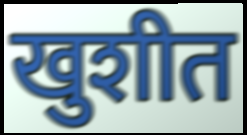
खुशीत